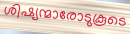
ശിഷ്യന്മാരോടുകൂടെ